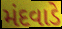
મંદવાડે